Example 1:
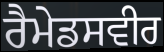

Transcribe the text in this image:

ਰੈਮੇਡਸਵੀਰ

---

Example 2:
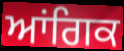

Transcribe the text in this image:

ਆਂਗਿਕ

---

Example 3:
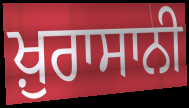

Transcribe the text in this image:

ਖ਼ੁਰਾਸਾਨੀ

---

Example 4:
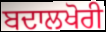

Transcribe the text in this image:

ਬਦਾਲਖੋਰੀ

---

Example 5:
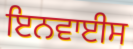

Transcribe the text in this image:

ਇਨਵਾਈਸ